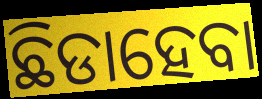
ଛିଡାହେବା